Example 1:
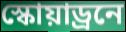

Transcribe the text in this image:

স্কোয়াড্রনে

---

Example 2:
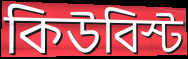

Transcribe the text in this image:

কিউবিস্ট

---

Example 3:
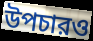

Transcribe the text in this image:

উপচারও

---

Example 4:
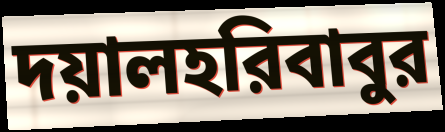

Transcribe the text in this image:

দয়ালহরিবাবুর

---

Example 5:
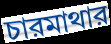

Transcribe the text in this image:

চারমাথার